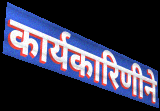
कार्यकारिणीने